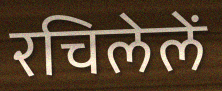
रचिलेलें